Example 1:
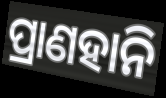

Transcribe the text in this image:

ପ୍ରାଣହାନି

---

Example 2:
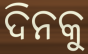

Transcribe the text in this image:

ଦିନକୁ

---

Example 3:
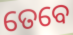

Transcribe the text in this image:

ତେବେ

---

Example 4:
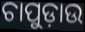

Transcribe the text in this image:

ଚାପୁଡ଼ାଉ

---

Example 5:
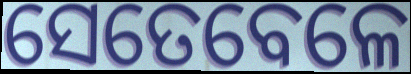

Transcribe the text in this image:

ସେତେବେଳେ